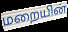
மறையின்